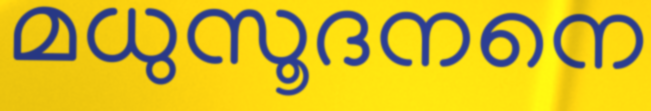
മധുസൂദനനെ